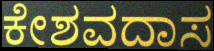
ಕೇಶವದಾಸ